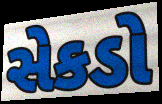
સેકડો